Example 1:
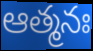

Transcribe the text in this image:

ఆత్మనః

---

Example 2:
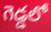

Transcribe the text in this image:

గెడ్డలో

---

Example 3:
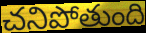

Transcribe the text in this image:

చనిపోతుంది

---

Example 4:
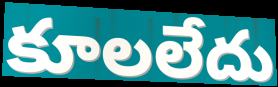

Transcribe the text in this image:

కూలలేదు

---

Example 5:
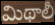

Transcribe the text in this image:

మిథాలీ